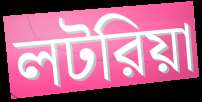
লটরিয়া